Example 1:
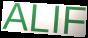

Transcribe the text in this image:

ALIF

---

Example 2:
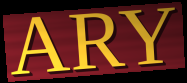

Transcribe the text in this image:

ARY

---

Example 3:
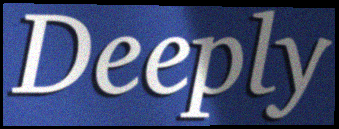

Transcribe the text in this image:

Deeply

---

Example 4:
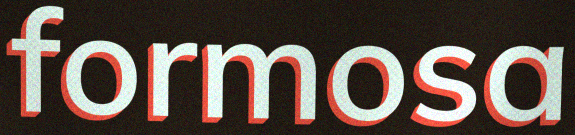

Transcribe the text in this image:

formosa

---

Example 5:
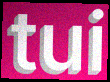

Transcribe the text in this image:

tui